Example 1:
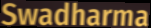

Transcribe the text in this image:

Swadharma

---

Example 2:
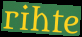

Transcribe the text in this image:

rihte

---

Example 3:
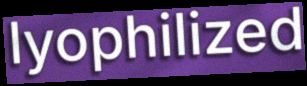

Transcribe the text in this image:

lyophilized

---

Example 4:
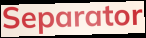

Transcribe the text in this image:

Separator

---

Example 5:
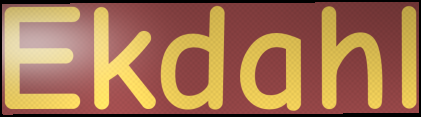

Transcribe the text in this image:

Ekdahl